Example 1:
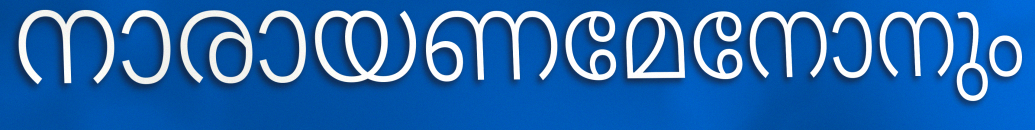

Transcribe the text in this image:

നാരായണമേനോനും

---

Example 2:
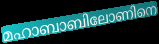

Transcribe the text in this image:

മഹാബാബിലോണിനെ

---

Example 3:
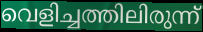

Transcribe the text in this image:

വെളിച്ചത്തിലിരുന്ന്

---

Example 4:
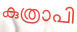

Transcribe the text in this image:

കുത്രാപി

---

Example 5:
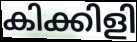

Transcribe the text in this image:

കിക്കിളി